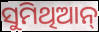
ସୁମିଥିଆନ୍